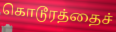
கொடூரத்தைச்